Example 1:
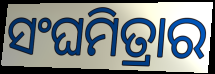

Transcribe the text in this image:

ସଂଘମିତ୍ରାର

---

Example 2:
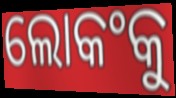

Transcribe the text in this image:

ଲୋକଂକୁ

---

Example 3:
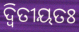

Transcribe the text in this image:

ଦ୍ବିତୀୟତଃ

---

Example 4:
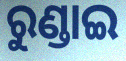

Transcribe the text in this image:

ରୁଣ୍ଡାଇ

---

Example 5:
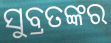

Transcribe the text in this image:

ସୁବ୍ରତଙ୍କର